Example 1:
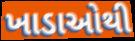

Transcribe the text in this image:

ખાડાઓથી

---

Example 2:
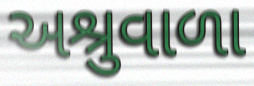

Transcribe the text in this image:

અશ્રુવાળા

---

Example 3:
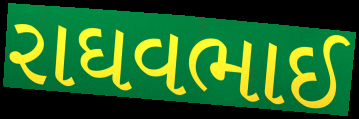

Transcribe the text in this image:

રાઘવભાઈ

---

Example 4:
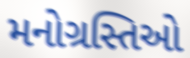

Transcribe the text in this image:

મનોગ્રસ્તિઓ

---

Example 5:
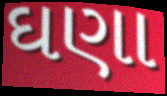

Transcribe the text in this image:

ઘણા